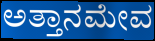
ಅತ್ತಾನಮೇವ